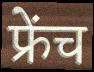
फ्रेंच